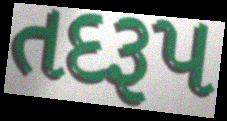
તદરૂપ